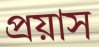
প্রয়াস